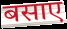
बसाए